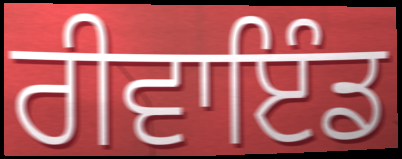
ਰੀਵਾਇੰਡ